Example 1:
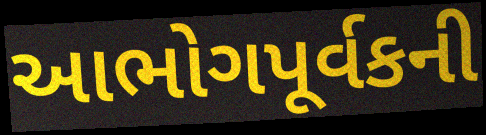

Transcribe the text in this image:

આભોગપૂર્વકની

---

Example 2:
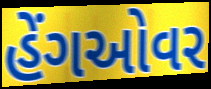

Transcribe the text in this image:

હેંગઓવર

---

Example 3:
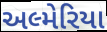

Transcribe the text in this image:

અલ્મેરિયા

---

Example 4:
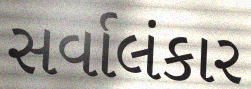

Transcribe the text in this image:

સર્વાલંકાર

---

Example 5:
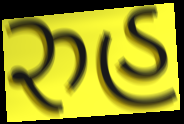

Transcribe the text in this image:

રુહ